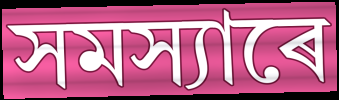
সমস্যাৰে